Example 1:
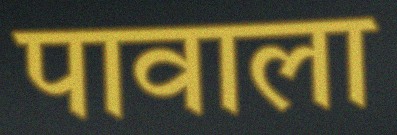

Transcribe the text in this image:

पावाला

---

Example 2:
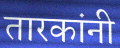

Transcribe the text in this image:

तारकांनी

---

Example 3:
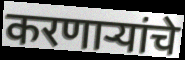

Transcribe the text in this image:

करणाऱ्यांचे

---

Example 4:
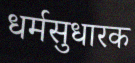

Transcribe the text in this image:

धर्मसुधारक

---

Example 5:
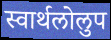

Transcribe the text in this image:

स्वार्थलोलुप